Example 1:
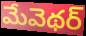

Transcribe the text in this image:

మేవెథర్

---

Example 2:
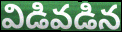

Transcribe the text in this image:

విడివడిన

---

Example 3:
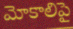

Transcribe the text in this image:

మోకాలిపై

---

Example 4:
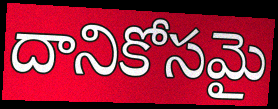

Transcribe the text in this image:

దానికోసమై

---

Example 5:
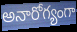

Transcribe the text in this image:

అనారోగ్యంగా